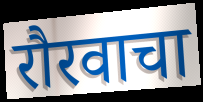
रौरवाचा